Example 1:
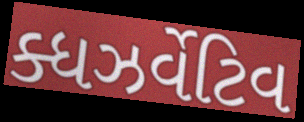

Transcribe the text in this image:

ક્ધઝર્વેટિવ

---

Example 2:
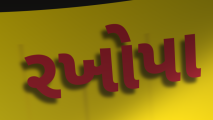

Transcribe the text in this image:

રખોપા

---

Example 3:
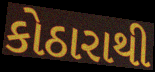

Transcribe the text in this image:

કોઠારાથી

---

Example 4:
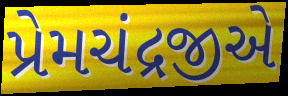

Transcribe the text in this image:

પ્રેમચંદ્રજીએ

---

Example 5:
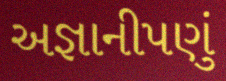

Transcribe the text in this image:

અજ્ઞાનીપણું